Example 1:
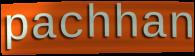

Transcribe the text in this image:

pachhan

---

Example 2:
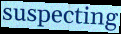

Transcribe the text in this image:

suspecting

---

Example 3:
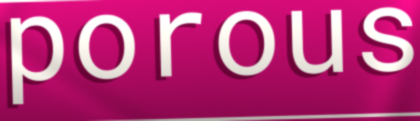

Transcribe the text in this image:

porous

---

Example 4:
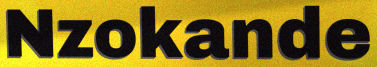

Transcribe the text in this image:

Nzokande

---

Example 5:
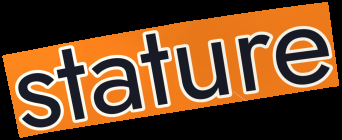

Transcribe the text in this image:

stature